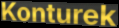
Konturek